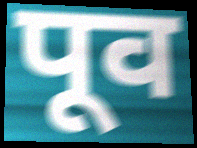
पूव